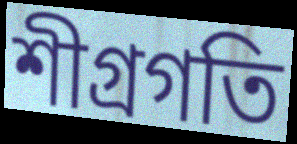
শীগ্রগতি